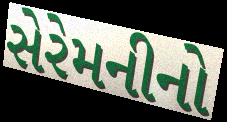
સેરેમનીનો